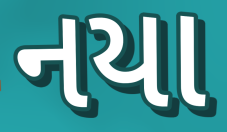
નયા